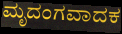
ಮೃದಂಗವಾದಕ